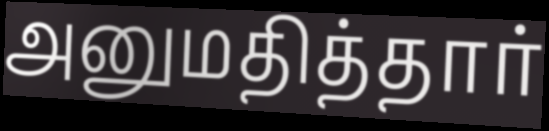
அனுமதித்தார்